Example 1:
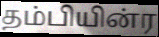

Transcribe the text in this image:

தம்பியின்ர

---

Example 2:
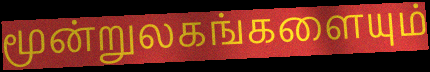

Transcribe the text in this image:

மூன்றுலகங்களையும்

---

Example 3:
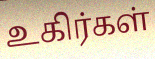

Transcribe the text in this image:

உகிர்கள்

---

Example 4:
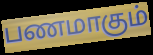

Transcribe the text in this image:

பணமாகும்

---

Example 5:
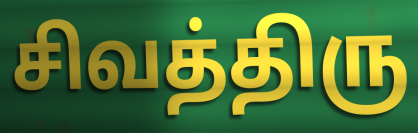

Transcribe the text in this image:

சிவத்திரு